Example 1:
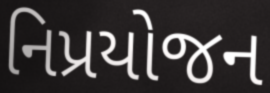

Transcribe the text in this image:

નિપ્રયોજન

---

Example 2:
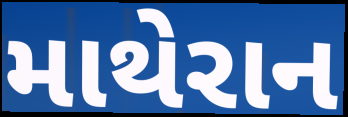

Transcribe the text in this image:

માથેરાન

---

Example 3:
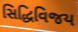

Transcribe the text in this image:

સિદ્ધિવિજય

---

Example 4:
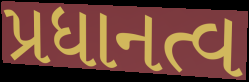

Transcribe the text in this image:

પ્રધાનત્વ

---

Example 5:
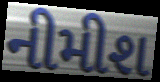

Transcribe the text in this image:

નીમીશ